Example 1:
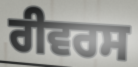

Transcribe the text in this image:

ਰੀਵਰਸ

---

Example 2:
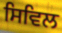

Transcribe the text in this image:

ਸਿਵਿਲ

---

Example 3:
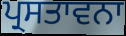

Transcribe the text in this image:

ਪ੍ਰਸਤਾਵਨਾ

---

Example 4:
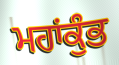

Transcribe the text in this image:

ਮਹਾਂਕੁੰਭ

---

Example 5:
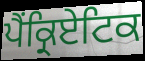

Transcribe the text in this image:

ਪੈਂਕ੍ਰਿਏਟਿਕ